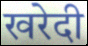
खरेदी